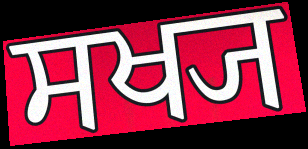
ਸਖ੍ਯ